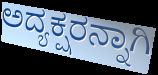
ಅದ್ಯಕ್ಷರನ್ನಾಗಿ